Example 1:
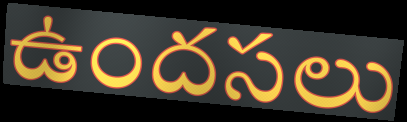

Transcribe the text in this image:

ఉందసలు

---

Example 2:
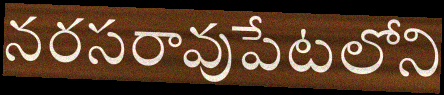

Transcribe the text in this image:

నరసరావుపేటలోని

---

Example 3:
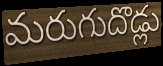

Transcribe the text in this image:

మరుగుదొడ్లు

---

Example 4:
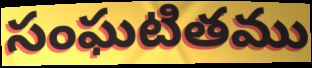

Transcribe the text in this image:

సంఘటితము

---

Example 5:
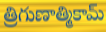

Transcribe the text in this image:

త్రిగుణాత్మికామ్